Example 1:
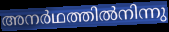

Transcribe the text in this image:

അനർഥത്തിൽനിന്നു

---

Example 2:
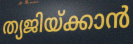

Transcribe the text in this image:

ത്യജിയ്ക്കാൻ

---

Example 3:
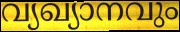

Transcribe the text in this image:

വ്യഖ്യാനവും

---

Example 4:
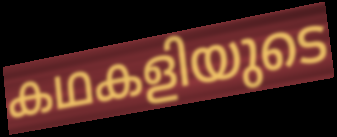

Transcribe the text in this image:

കഥകളിയുടെ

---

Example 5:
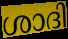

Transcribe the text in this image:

ശാദി